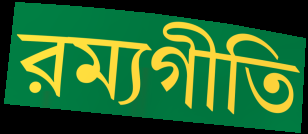
রম্যগীতি